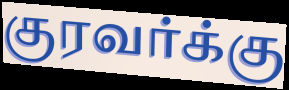
குரவர்க்கு